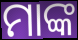
ମାଙ୍କ